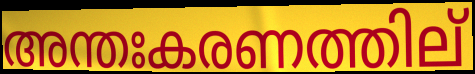
അന്തഃകരണത്തില്